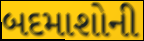
બદમાશોની